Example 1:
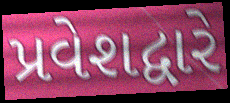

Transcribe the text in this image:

પ્રવેશદ્વારે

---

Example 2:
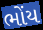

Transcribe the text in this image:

ભોંય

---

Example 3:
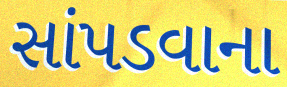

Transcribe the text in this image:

સાંપડવાના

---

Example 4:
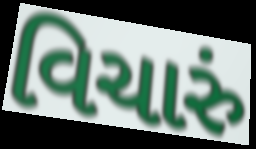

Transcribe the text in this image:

વિચારું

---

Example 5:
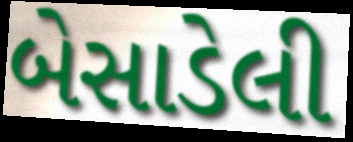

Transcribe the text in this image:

બેસાડેલી